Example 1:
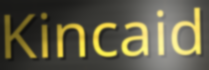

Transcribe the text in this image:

Kincaid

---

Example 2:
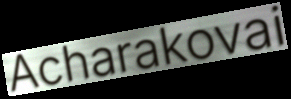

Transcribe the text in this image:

Acharakovai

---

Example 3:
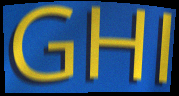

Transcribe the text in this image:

GHI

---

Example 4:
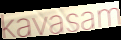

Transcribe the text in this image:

kavasam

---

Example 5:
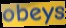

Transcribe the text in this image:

obeys